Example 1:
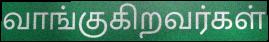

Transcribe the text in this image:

வாங்குகிறவர்கள்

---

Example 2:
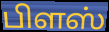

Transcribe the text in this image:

பிளஸ்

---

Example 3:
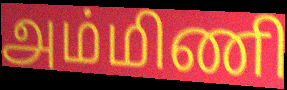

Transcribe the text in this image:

அம்மிணி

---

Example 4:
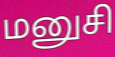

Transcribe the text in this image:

மனுசி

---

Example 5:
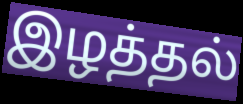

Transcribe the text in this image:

இழத்தல்